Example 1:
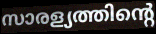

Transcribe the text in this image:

സാരള്യത്തിന്റെ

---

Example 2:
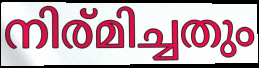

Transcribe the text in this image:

നിര്മിച്ചതും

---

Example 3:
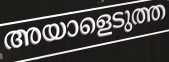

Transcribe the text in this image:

അയാളെടുത്ത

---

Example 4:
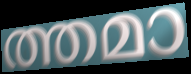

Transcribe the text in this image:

ത്തമാ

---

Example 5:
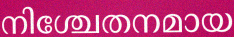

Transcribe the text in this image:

നിശ്ചേതനമായ